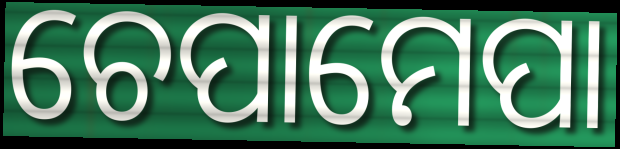
ଚେପାମେପା